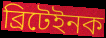
ব্ৰিটেইনক